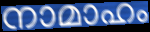
നാമാഹം